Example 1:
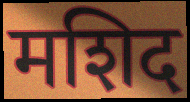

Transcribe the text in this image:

मशिद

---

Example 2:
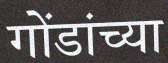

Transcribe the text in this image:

गोंडांच्या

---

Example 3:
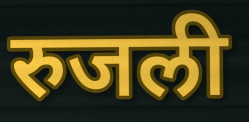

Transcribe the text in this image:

रुजली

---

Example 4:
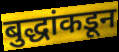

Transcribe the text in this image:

बुद्धांकडून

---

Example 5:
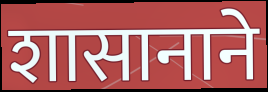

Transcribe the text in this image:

शासानाने